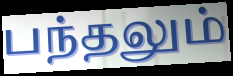
பந்தலும்